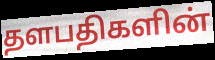
தளபதிகளின்